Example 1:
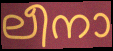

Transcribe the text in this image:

ലീനാ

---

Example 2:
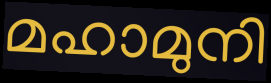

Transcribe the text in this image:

മഹാമുനി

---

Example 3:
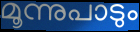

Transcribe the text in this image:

മൂന്നുപാടും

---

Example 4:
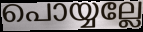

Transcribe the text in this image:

പൊയ്യല്ലേ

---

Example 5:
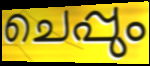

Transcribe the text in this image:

ചെപ്പും